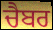
ਚੈਬਰ